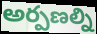
అర్పణల్ని